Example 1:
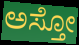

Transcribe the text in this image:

ಅಸ್ತೋ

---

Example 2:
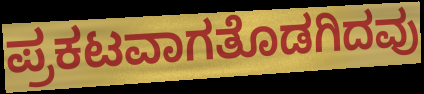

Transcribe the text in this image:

ಪ್ರಕಟವಾಗತೊಡಗಿದವು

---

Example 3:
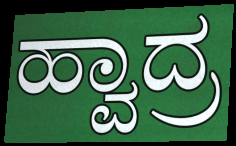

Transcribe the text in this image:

ಹ್ವಾದ್ರ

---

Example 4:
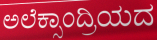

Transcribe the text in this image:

ಅಲೆಕ್ಸಾಂದ್ರಿಯದ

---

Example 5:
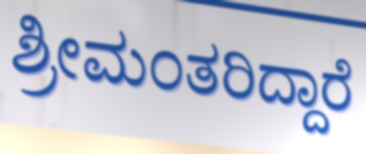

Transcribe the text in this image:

ಶ್ರೀಮಂತರಿದ್ದಾರೆ